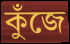
কুঁজে